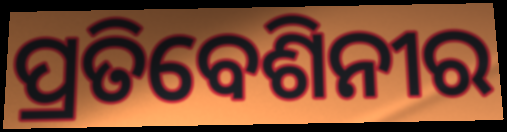
ପ୍ରତିବେଶିନୀର